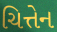
ચિત્તેન